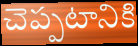
చెప్పటానికి